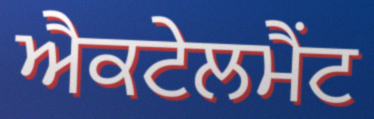
ਐਕਟੇਲਮੈਂਟ